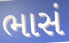
ભાસં